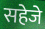
सहेजे